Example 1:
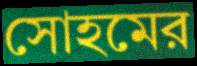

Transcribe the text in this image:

সোহমের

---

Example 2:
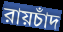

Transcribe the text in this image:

রায়চাঁদ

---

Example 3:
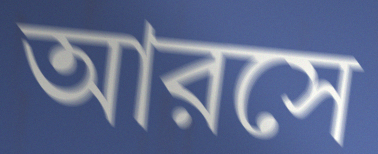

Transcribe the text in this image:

আরসে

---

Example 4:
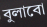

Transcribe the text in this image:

বুলাবো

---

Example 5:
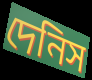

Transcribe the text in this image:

দেনিস